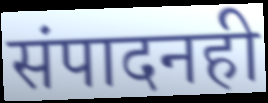
संपादनही